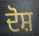
ਦੋਸ਼